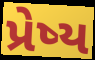
પ્રેષ્ય